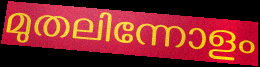
മുതലിന്നോളം